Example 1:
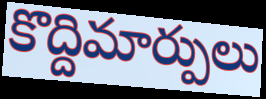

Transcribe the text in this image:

కొద్దిమార్పులు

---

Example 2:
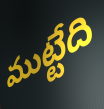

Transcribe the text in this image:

ముట్టేది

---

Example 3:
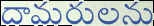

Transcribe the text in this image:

దామరులను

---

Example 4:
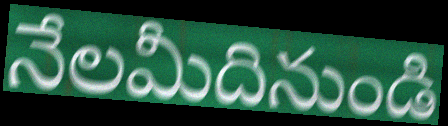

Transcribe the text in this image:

నేలమీదినుండి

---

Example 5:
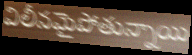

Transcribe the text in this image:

విలీనమైపోతున్నాయి